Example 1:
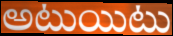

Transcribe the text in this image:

అటుయిటు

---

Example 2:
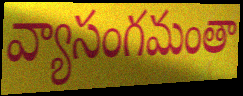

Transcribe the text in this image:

వ్యాసంగమంతా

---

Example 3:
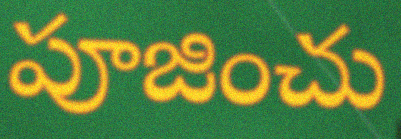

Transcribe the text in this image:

పూజించు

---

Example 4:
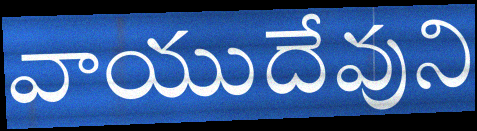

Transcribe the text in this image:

వాయుదేవుని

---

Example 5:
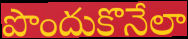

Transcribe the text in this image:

పొందుకొనేలా